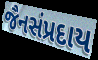
જૈનસંપ્રદાય